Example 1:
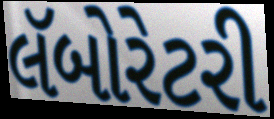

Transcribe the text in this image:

લૅબોરેટરી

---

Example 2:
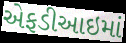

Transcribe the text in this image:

એફડીઆઇમાં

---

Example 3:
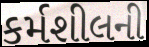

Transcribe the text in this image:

કર્મશીલની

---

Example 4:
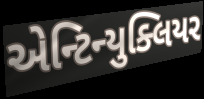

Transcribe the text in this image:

એન્ટિન્યુક્લિયર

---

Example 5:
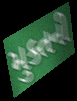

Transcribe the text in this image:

મુક્તની